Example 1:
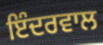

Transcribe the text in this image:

ਇੰਦਰਵਾਲ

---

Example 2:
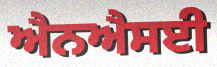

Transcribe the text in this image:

ਐਨਐਸਈ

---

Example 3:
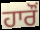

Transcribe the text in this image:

ਹਾਰੌਂ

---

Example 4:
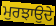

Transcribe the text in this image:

ਮੁਰਝਾਉਦੇ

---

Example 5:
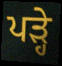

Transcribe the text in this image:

ਪਡ਼੍ਹੇ